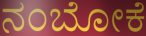
ನಂಬೋಕೆ